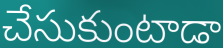
చేసుకుంటాడా